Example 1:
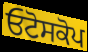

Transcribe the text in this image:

ਓਟੋਸਕੋਪ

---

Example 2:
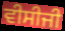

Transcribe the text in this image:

ਵੀਸੀਜੀ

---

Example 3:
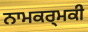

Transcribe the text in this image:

ਨਾਮਕਰ੍ਮਕੀ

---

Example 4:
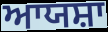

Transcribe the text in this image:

ਆਯਸ਼ਾ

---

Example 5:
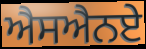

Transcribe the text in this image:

ਐਸਐਨਏ